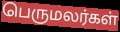
பெருமலர்கள்